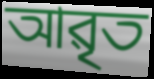
আৱৃত